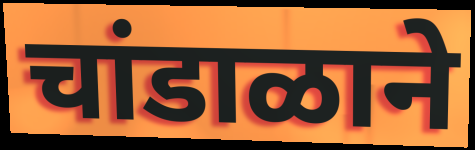
चांडाळाने